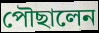
পৌছালেন